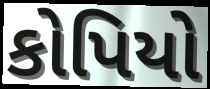
કોપિયો